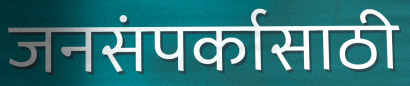
जनसंपर्कासाठी